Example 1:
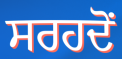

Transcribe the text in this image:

ਸਰਹਦੋਂ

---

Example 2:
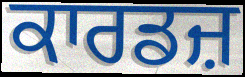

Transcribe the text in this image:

ਕਾਰਡਜ਼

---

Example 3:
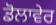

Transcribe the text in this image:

ਡੋਲਾਵੇਰ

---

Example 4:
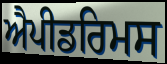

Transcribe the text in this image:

ਐਪੀਡਰਿਮਸ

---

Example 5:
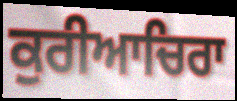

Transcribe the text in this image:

ਕੁਰੀਆਚਿਰਾ